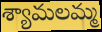
శ్యామలమ్మ